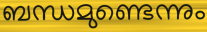
ബന്ധമുണ്ടെന്നും